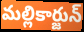
మల్లికార్జున్